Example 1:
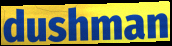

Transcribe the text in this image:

dushman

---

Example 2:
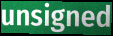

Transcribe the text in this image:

unsigned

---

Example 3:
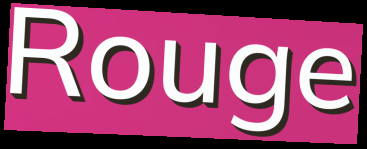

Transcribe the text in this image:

Rouge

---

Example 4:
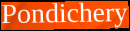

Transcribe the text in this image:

Pondichery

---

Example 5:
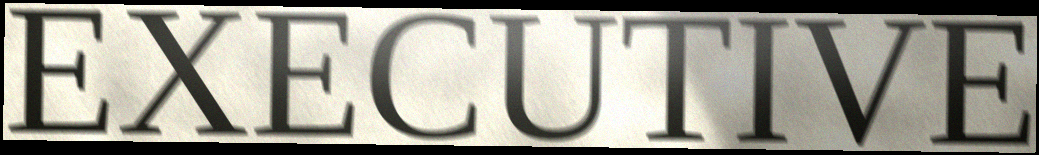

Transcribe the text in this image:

EXECUTIVE